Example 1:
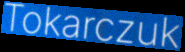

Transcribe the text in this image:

Tokarczuk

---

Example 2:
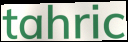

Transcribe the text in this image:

tahric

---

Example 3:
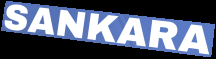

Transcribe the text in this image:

SANKARA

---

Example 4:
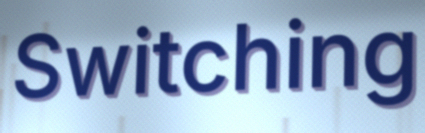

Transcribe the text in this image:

Switching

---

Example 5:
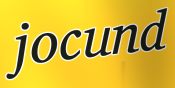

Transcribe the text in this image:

jocund